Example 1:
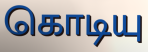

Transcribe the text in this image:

கொடியு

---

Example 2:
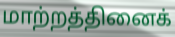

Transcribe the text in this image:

மாற்றத்தினைக்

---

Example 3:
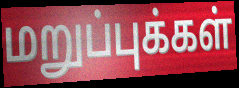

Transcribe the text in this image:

மறுப்புக்கள்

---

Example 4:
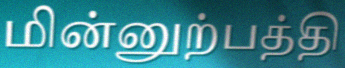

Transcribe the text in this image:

மின்னுற்பத்தி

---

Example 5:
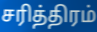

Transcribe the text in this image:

சரித்திரம்